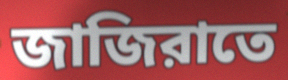
জাজিরাতে